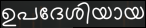
ഉപദേശിയായ